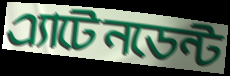
এ্যাটেনডেন্ট